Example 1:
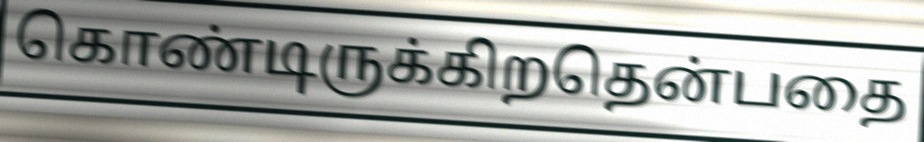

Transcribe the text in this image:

கொண்டிருக்கிறதென்பதை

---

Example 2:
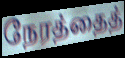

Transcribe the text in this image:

நேரத்தைத்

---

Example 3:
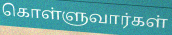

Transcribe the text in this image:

கொள்ளுவார்கள்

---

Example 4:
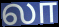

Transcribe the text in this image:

லா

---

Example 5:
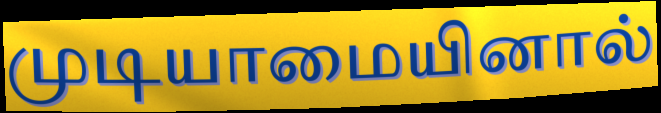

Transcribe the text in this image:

முடியாமையினால்